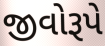
જીવોરૂપે